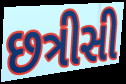
છત્રીસી